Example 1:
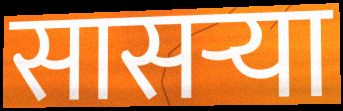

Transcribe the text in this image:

सासर्‍या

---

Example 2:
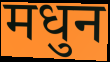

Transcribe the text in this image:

मधुन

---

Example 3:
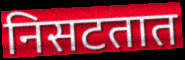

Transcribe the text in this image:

निसटतात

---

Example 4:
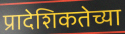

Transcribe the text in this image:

प्रादेशिकतेच्या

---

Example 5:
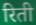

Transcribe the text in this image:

रिती